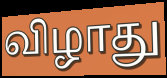
விழாது